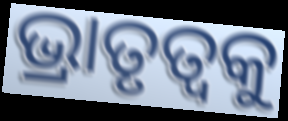
ଭ୍ରାତୃତ୍ୱକୁ